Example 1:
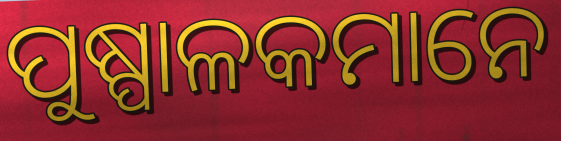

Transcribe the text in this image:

ପୁଷ୍ପାଳକମାନେ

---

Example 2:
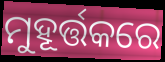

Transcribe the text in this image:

ମୁହୂର୍ତ୍ତକରେ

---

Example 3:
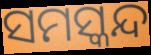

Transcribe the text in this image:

ସମସ୍କନ୍ଦ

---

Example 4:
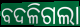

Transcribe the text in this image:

ବଦଳିଗଲା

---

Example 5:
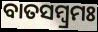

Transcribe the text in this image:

ବାତସମ୍ବ୍ରମଃ